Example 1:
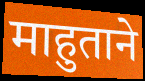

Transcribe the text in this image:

माहुताने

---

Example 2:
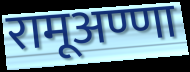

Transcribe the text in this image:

रामूअण्णा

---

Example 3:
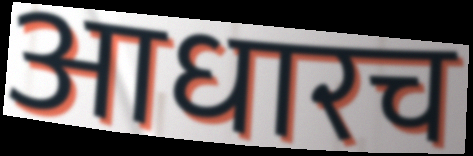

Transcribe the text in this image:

आधारच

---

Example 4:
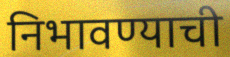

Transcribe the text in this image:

निभावण्याची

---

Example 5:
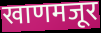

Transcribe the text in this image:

खाणमजूर